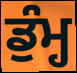
ਡੁੰਮ੍ਹ